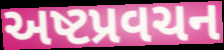
અષ્ટપ્રવચન